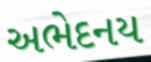
અભેદનય